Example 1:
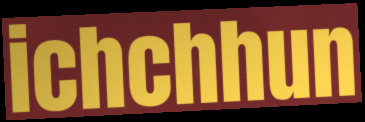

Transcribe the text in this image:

ichchhun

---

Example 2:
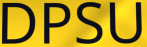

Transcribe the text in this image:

DPSU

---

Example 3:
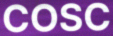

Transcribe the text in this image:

COSC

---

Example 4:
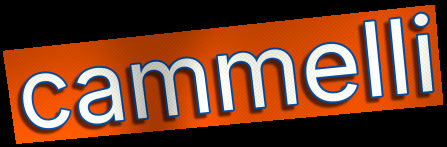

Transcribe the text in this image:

cammelli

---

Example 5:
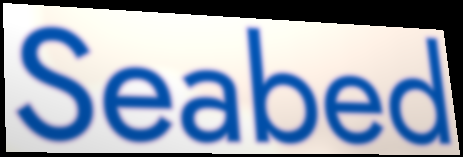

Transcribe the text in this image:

Seabed